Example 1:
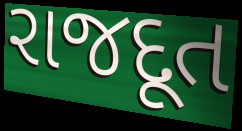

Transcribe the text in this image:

રાજદૂત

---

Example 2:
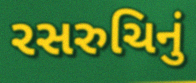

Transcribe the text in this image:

રસરુચિનું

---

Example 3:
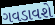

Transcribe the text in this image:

ગવડાવશે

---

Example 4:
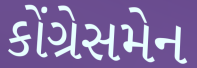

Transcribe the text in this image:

કોંગ્રેસમેન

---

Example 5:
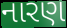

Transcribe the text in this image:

નારણ